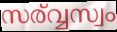
സര്വ്വസ്വം